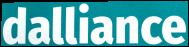
dalliance